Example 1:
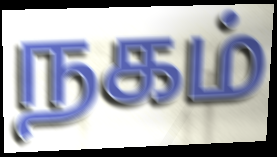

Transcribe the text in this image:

நகம்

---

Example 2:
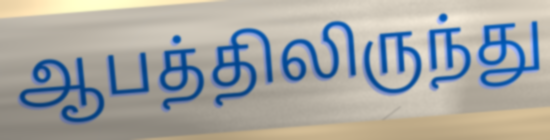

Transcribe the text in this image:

ஆபத்திலிருந்து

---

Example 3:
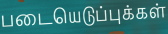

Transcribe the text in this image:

படையெடுப்புக்கள்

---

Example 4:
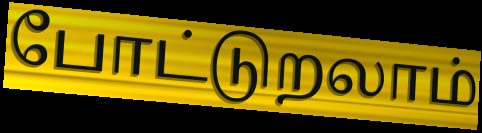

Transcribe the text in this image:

போட்டுறலாம்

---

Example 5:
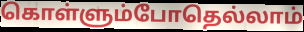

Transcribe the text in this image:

கொள்ளும்போதெல்லாம்